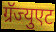
ग्रॅज्युएट